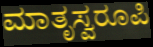
ಮಾತೃಸ್ವರೂಪಿ